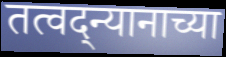
तत्वद्न्यानाच्या